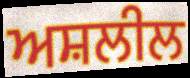
ਅਸ਼ਲੀਲ